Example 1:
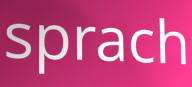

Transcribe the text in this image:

sprach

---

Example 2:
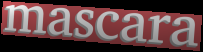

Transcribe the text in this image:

mascara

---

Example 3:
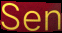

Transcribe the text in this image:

Sen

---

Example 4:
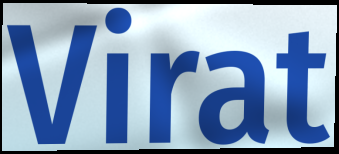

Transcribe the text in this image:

Virat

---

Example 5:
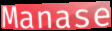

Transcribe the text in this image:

Manase